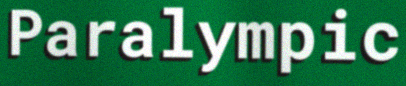
Paralympic